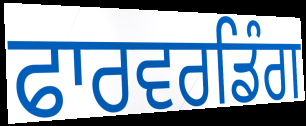
ਫਾਰਵਰਡਿੰਗ